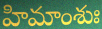
హిమాంశుః